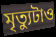
মৃত্যুটাও